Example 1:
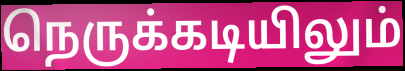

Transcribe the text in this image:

நெருக்கடியிலும்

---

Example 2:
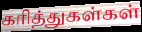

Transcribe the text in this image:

கரித்துகள்கள்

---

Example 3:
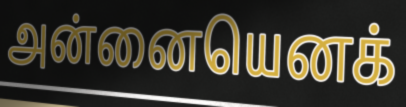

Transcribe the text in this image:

அன்னையெனக்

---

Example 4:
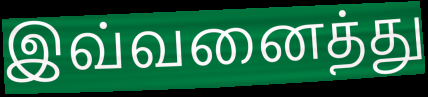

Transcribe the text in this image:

இவ்வனைத்து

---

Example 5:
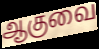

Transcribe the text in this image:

ஆகுவை